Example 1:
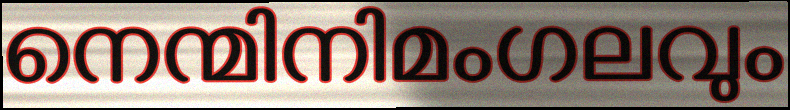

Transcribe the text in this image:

നെന്മിനിമംഗലവും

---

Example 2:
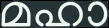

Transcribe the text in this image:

മഹാ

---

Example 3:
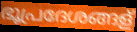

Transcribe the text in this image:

ഭൂപ്രദേശങ്ങള്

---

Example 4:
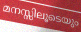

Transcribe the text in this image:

മനസ്സിലൂടെയും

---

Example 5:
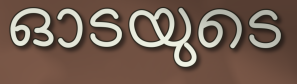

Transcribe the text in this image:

ഓടയുടെ